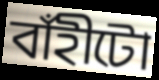
বাঁহীটো